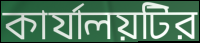
কার্যালয়টির